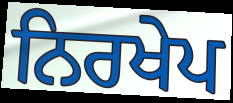
ਨਿਰਖੇਪ